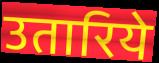
उतारिये